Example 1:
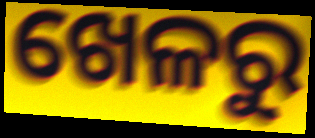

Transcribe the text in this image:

ଖେଳରୁ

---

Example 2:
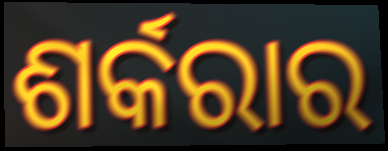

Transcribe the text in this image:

ଶର୍କରାର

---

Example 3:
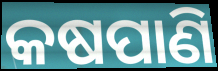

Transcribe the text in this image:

କଷପାଣି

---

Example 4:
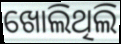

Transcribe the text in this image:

ଖୋଲିଥିଲି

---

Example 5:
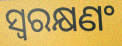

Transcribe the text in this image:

ସ୍ୱରକ୍ଷଣଂ